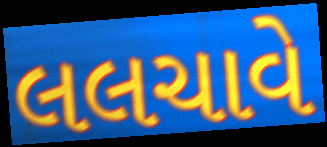
લલચાવે